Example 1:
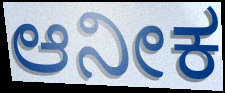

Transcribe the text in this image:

ಆನೀಕ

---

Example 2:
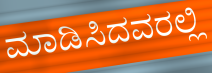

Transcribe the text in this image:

ಮಾಡಿಸಿದವರಲ್ಲಿ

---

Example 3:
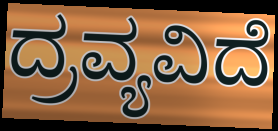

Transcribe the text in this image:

ದ್ರವ್ಯವಿದೆ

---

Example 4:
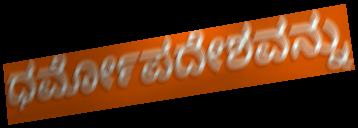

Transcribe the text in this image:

ಧರ್ಮೋಪದೇಶವನ್ನು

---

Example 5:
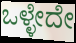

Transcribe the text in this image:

ಒಳ್ಳೇದೇ